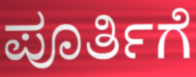
ಪೂರ್ತಿಗೆ